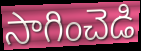
సాగించెడి